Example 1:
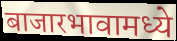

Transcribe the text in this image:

बाजारभावामध्ये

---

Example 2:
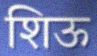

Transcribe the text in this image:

शिऊ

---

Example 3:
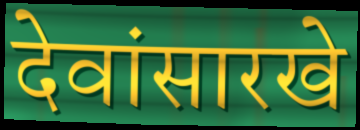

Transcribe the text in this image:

देवांसारखे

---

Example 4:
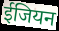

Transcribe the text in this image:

ईजियन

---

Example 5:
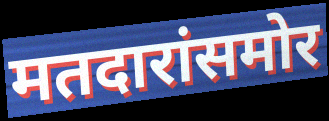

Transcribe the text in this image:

मतदारांसमोर